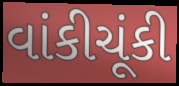
વાંકીચૂંકી